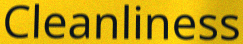
Cleanliness